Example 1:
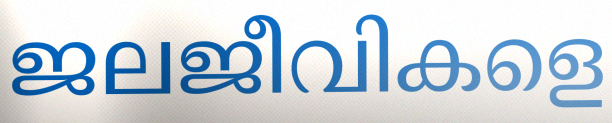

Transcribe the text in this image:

ജലജീവികളെ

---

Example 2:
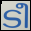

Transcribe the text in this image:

ടീ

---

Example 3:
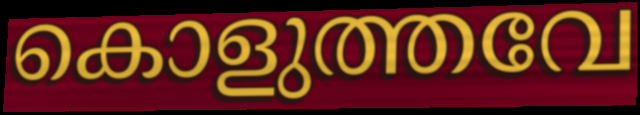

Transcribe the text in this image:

കൊളുത്തവേ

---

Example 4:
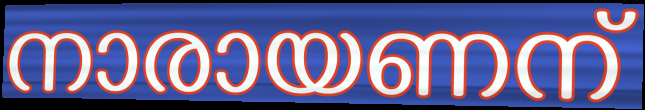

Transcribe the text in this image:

നാരായണന്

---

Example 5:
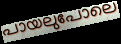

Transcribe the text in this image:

പായലുപോലെ